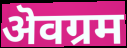
ऄवग्रम